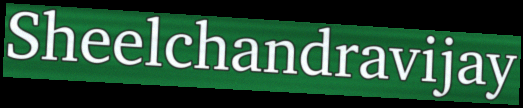
Sheelchandravijay